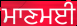
ਮਾਣਮਈ